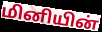
மினியின்